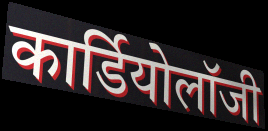
कार्डियोलॉजी